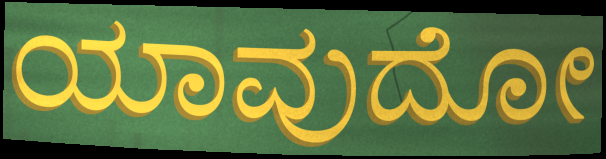
ಯಾವುದೋ